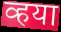
व्हया